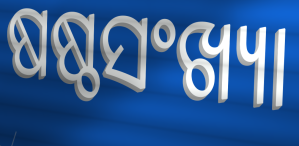
ଷଷ୍ଠସଂଖ୍ୟା